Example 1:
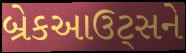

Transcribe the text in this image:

બ્રેકઆઉટ્સને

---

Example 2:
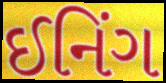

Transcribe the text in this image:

ઈનિંગ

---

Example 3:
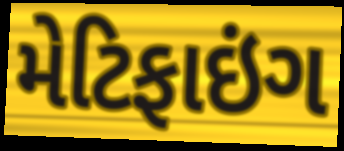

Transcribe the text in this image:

મેટિફાઇંગ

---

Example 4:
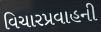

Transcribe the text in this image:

વિચારપ્રવાહની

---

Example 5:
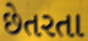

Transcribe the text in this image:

છેતરતા